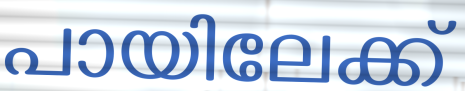
പായിലേക്ക്